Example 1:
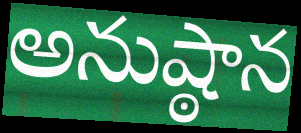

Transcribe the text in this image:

అనుష్ఠాన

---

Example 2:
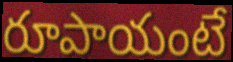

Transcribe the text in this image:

రూపాయంటే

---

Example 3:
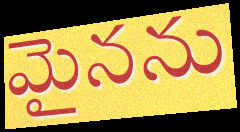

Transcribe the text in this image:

మైనను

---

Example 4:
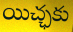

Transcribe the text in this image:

యిచ్ఛకు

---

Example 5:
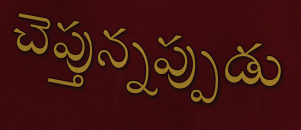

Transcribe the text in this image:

చెప్తున్నప్పుడు